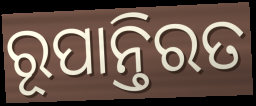
ରୂପାନ୍ତିରତ